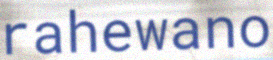
rahewano